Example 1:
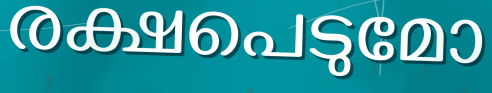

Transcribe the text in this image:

രക്ഷപെടുമോ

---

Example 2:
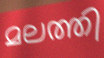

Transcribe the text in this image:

മലത്തി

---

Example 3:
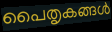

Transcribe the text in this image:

പൈതൃകങ്ങൾ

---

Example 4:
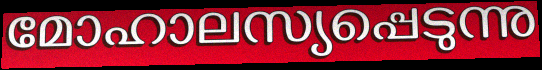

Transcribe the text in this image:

മോഹാലസ്യപ്പെടുന്നു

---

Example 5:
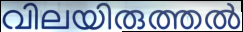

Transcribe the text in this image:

വിലയിരുത്തൽ